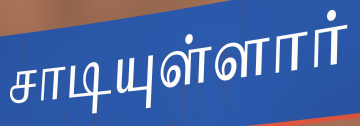
சாடியுள்ளார்